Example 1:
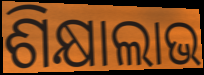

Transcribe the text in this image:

ଶିକ୍ଷାଲାଭ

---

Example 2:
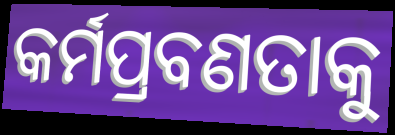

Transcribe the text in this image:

କର୍ମପ୍ରବଣତାକୁ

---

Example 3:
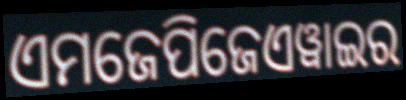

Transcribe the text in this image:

ଏମଜେପିଜେଏୱାଇର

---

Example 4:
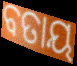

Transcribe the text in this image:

ବତାୟ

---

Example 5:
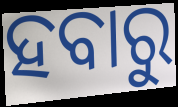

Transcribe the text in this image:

ହବାରୁ